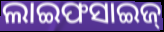
ଲାଇଫସାଇଜ୍